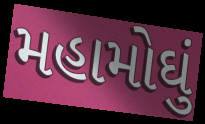
મહામોઘું